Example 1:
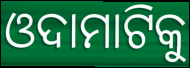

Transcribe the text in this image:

ଓଦାମାଟିକୁ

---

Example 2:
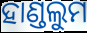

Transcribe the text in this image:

ହାଣ୍ଡଲୁମ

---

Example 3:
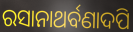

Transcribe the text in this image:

ରସାନାଥର୍ବଣାଦପି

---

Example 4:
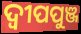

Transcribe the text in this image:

ଦ୍ଵୀପପୁଞ୍ଜ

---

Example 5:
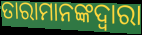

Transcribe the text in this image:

ତାରାମାନଙ୍କଦ୍ୱାରା